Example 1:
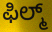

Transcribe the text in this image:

ಫಿಲ್ಮ್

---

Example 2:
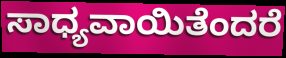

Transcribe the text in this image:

ಸಾಧ್ಯವಾಯಿತೆಂದರೆ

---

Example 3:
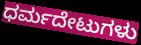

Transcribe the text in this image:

ಧರ್ಮದೇಟುಗಳು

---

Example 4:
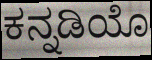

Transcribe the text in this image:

ಕನ್ನಡಿಯೊ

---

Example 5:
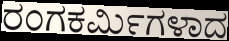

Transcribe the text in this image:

ರಂಗಕರ್ಮಿಗಳಾದ